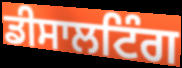
ਡੀਸਾਲਟਿੰਗ